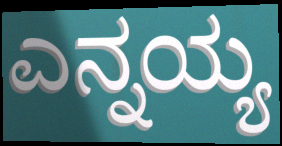
ಎನ್ನಯ್ಯ